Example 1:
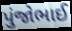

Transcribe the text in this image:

પુંજોભાઈ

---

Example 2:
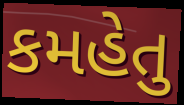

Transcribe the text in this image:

કમહેતુ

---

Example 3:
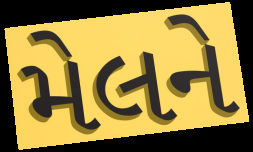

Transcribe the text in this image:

મેલને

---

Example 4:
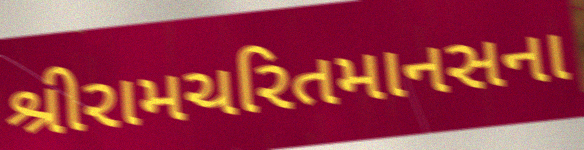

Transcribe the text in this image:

શ્રીરામચરિતમાનસના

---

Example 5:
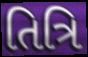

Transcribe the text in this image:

તિત્રિ